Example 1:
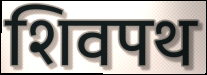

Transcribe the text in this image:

शिवपथ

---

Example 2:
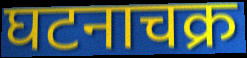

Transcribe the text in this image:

घटनाचक्र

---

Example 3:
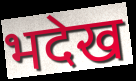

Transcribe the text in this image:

भदेख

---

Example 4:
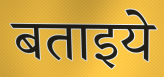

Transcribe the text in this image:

बताइये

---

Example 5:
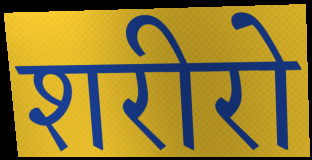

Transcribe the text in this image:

शरीरो